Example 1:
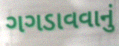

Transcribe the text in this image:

ગગડાવવાનું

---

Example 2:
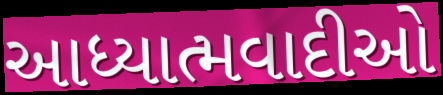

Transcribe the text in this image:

આધ્યાત્મવાદીઓ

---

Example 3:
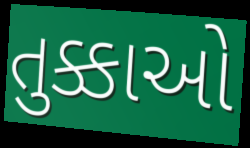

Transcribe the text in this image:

તુક્કાઓ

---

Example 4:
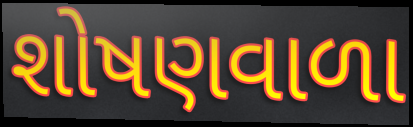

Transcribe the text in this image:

શોષણવાળા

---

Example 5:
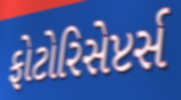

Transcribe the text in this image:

ફોટોરિસેપ્ટર્સ